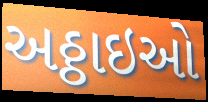
અઠ્ઠાઇઓ